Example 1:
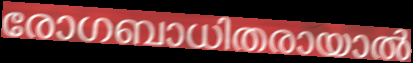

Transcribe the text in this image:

രോഗബാധിതരായാൽ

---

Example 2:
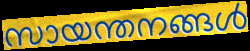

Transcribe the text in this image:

സായന്തനങ്ങൾ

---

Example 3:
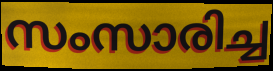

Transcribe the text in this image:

സംസാരിച്ച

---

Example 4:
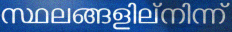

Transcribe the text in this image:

സ്ഥലങ്ങളില്നിന്ന്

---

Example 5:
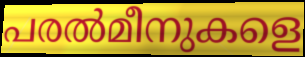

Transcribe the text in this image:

പരൽമീനുകളെ